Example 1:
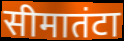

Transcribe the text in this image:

सीमातंटा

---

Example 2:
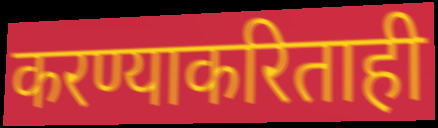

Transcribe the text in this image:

करण्याकरिताही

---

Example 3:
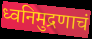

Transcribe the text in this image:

ध्वनिमुद्रणाचं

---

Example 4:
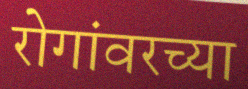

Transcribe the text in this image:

रोगांवरच्या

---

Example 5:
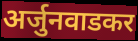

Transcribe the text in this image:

अर्जुनवाडकर